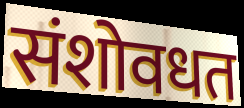
संशोवधत